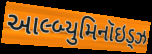
આલ્બ્યુમિનૉઇડ્ઝ